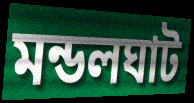
মন্ডলঘাট